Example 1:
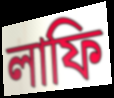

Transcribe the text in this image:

লাফি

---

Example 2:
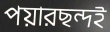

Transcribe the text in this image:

পয়ারছন্দই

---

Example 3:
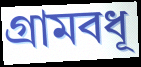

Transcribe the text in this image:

গ্রামবধূ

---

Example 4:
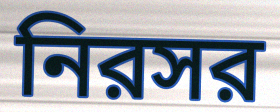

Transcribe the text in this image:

নিরসর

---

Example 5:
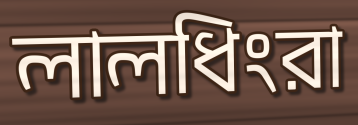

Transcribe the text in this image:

লালধিংরা